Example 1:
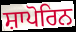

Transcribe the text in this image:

ਸ਼ਾਪੋਰਿਨ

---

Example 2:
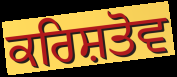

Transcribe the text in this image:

ਕਰਿਸ਼ਤੋਵ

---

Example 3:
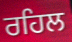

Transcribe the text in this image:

ਰਹਿਲ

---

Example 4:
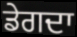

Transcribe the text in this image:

ਡੇਗਦਾ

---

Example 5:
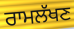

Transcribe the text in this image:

ਰਾਮਲੱਖਣ